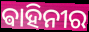
ଵାହିନୀର